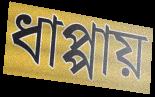
ধাপ্পায়